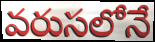
వరుసలోనే